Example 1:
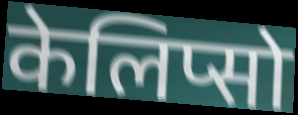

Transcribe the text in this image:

केलिप्सो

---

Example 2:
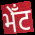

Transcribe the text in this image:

भेँट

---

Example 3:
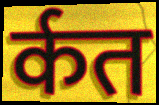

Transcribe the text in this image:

र्कत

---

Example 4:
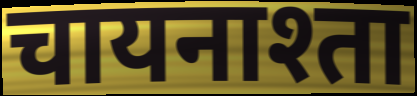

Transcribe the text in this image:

चायनाश्ता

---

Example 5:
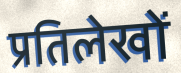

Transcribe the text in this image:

प्रतिलेखों